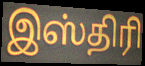
இஸ்திரி